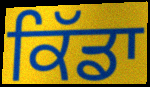
ਕਿੱਡਾ